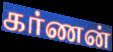
கர்ணன்